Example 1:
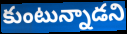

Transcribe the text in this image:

కుంటున్నాడని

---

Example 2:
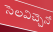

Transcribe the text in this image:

సెలవిచ్చెనో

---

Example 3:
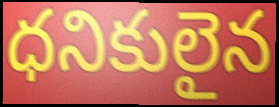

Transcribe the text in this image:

ధనికులైన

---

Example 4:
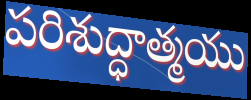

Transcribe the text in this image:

పరిశుద్ధాత్మయు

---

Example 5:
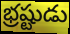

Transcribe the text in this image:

భ్రష్టుడు